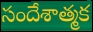
సందేశాత్మక